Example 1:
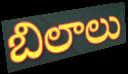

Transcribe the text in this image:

బిలాలు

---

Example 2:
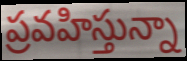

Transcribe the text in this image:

ప్రవహిస్తున్నా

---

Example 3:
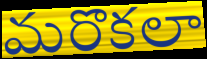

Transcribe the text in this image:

మరొకలా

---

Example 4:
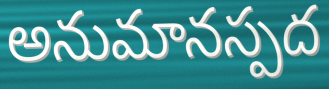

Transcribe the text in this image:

అనుమానస్పద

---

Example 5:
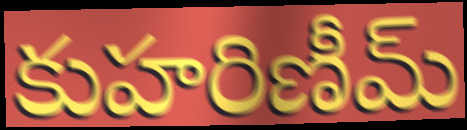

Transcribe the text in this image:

కుహరిణీమ్